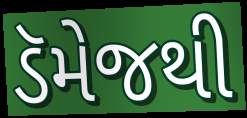
ડૅમેજથી